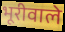
भूरीवाले